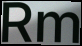
Rm